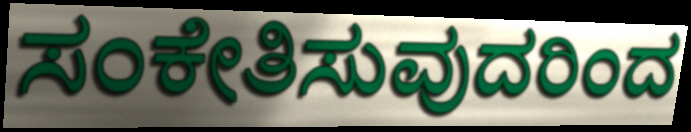
ಸಂಕೇತಿಸುವುದರಿಂದ